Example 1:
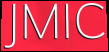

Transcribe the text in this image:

JMIC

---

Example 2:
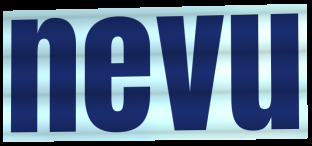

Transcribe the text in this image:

nevu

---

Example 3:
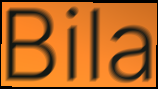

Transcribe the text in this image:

Bila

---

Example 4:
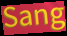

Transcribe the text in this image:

Sang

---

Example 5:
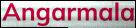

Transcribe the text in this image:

Angarmala